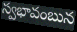
స్వభావంబున